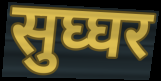
सुघ्घर